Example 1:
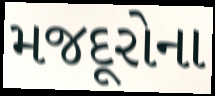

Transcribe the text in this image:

મજદૂરોના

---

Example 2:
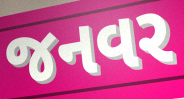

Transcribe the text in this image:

જનવર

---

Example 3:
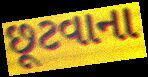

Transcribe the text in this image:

છૂટવાના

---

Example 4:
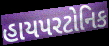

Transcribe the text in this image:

હાયપરટોનિક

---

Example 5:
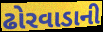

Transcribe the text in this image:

ઢોરવાડાની